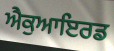
ਐਕੁਆਇਰਡ